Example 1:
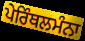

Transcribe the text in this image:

ਪੇਰਿੰਥਲਮੰਨਾ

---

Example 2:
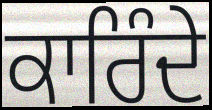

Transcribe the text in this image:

ਕਾਰਿੰਦੇ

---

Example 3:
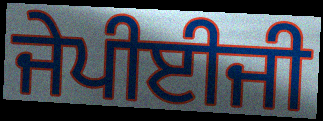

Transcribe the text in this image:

ਜੇਪੀਈਜੀ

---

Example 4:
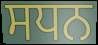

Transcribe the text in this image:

ਸਧਨ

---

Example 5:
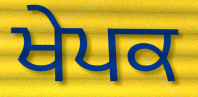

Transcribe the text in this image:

ਖੇਪਕ